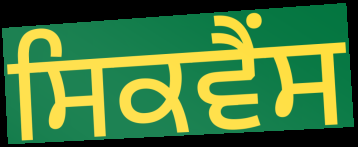
ਸਿਕਵੈਂਸ